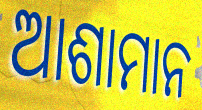
ଆଶାମାନ